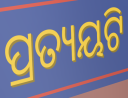
ପ୍ରତ୍ୟୟଟି